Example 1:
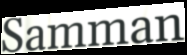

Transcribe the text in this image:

Samman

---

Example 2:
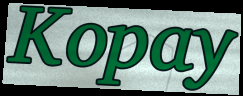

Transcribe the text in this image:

Kopay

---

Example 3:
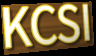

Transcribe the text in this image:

KCSI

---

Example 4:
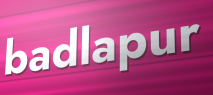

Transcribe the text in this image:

badlapur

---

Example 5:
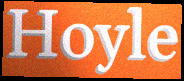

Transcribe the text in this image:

Hoyle